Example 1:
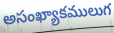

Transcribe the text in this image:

అసంఖ్యాకములుగ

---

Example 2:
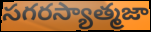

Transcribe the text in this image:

సగరస్యాత్మజా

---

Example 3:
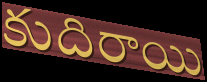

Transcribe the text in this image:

కుదిరాయి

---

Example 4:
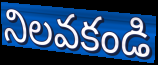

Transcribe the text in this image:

నిలవకండి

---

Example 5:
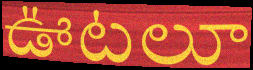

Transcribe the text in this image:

ఊటలూ